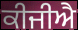
ਕੀਜੀਐ